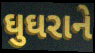
ઘુઘરાને